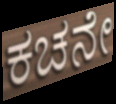
ಕಚನೇ